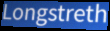
Longstreth